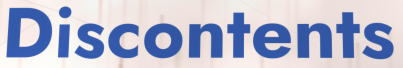
Discontents